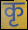
कृ